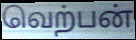
வெற்பன்